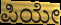
ಪಿಯೇ